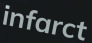
infarct